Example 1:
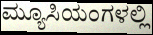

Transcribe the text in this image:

ಮ್ಯೂಸಿಯಂಗಳಲ್ಲಿ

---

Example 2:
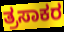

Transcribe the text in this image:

ತ್ರಸಾಕರ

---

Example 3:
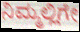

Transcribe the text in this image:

ನಿಮ್ಮಲ್ಲಿಗೇ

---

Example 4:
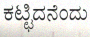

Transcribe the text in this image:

ಕಟ್ಟಿದನೆಂದು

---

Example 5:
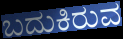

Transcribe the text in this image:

ಬದುಕಿರುವ